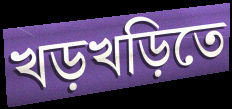
খড়খড়িতে